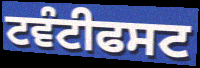
ਟਵੰਟੀਫਸਟ